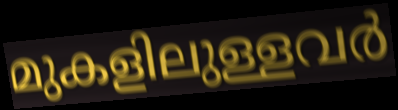
മുകളിലുള്ളവർ